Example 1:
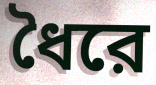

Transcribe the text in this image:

ধৈরে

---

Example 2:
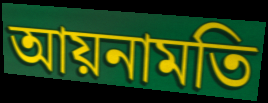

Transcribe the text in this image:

আয়নামতি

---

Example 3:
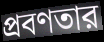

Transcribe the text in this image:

প্রবণতার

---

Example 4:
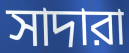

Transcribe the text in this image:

সাদারা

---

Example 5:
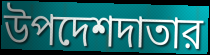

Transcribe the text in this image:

উপদেশদাতার